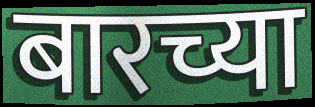
बारच्या